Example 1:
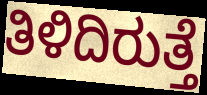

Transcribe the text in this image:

ತಿಳಿದಿರುತ್ತೆ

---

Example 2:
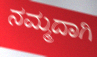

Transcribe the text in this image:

ನಮ್ಮದಾಗಿ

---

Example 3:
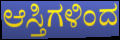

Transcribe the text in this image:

ಆಸ್ತಿಗಳಿಂದ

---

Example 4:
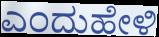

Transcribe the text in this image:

ಎಂದುಹೇಳಿ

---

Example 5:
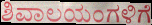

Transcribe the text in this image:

ಶಿವಾಲಯಂಗಳಿಗೆ